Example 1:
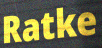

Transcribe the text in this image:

Ratke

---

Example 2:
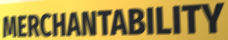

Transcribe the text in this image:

MERCHANTABILITY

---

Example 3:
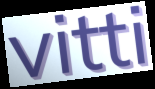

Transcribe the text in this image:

vitti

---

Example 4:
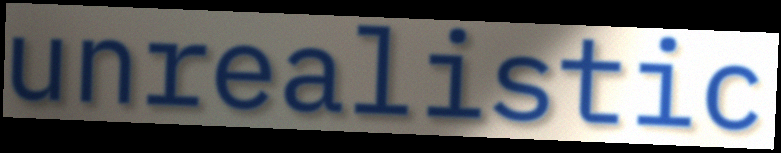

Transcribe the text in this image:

unrealistic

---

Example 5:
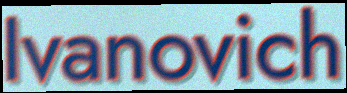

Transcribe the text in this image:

Ivanovich